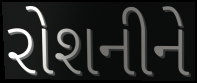
રોશનીને